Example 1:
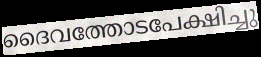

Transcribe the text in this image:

ദൈവത്തോടപേക്ഷിച്ചു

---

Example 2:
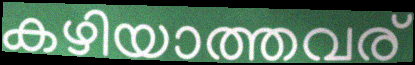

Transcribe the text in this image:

കഴിയാത്തവര്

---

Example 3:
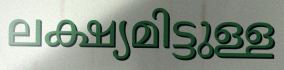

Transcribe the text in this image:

ലക്ഷ്യമിട്ടുള്ള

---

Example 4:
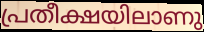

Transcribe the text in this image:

പ്രതീക്ഷയിലാണു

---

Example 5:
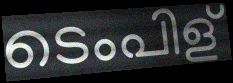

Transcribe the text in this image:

ടെംപിള്